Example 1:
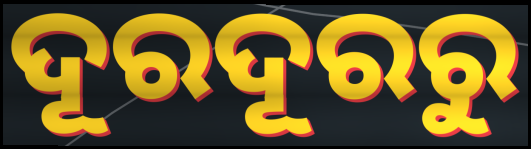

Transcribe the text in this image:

ଦୂରଦୂରରୁ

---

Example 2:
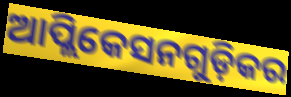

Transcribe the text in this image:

ଆପ୍ଲିକେସନଗୁଡ଼ିକର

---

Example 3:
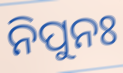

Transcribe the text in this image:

ନିପୁନଃ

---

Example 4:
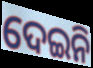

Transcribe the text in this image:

ଦେଇନି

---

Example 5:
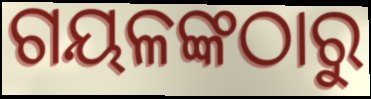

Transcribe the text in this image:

ଗୟଳଙ୍କଠାରୁ